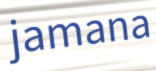
jamana